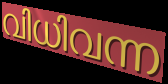
വിധിവന്ന